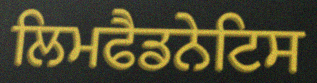
ਲਿਮਫੈਡਨੇਟਿਸ